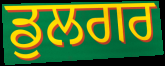
ਡੁਲਗਰ